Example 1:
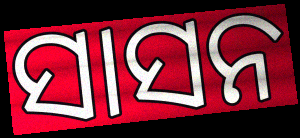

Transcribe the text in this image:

ସାସନ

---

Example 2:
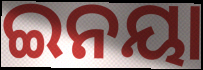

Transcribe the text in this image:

ଇନୟା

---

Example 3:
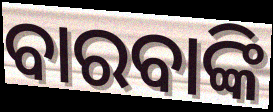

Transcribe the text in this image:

ବାରବାଙ୍କି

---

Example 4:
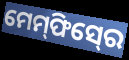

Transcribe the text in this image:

ମେମ୍‍ଫିସ୍‍ରେ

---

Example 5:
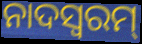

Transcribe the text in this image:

ନାଦସ୍ଵରମ୍